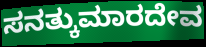
ಸನತ್ಕುಮಾರದೇವ